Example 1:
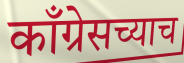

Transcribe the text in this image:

काँग्रेसच्याच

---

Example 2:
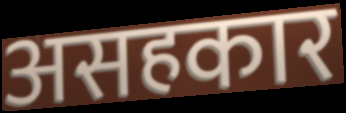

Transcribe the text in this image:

असहकार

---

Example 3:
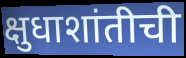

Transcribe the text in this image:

क्षुधाशांतीची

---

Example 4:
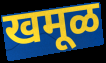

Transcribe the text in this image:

खमूळ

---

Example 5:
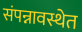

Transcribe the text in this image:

संपन्नावस्थेत